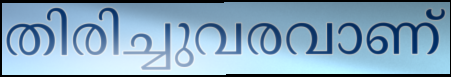
തിരിച്ചുവരവാണ്